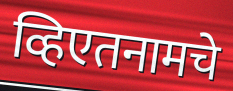
व्हिएतनामचे